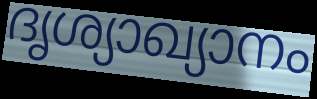
ദൃശ്യാഖ്യാനം